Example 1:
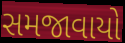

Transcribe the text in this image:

સમજાવાયો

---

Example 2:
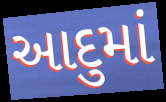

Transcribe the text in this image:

આદુમાં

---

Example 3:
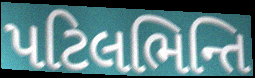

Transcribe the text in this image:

પટિલભિન્તિ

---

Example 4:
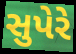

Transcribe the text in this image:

સુપેરે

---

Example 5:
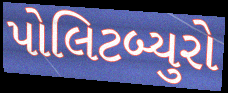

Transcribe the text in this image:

પોલિટબ્યુરો